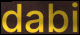
dabi